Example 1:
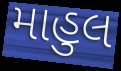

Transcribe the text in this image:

માહુલ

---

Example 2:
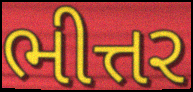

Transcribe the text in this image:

ભીત્તર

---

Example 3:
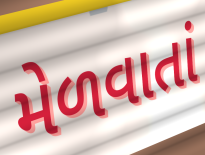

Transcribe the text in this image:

મેળવાતાં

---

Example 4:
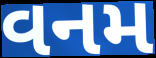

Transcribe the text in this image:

વનમ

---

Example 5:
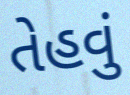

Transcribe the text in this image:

તેહવું